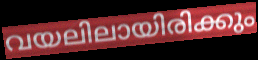
വയലിലായിരിക്കും